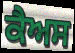
ਕੈਅਸ